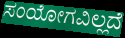
ಸಂಯೋಗವಿಲ್ಲದೆ